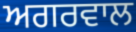
ਅਗਰਵਾਲ